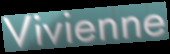
Vivienne